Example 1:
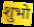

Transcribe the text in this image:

शुभो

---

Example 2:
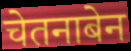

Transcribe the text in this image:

चेतनाबेन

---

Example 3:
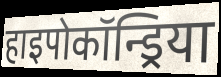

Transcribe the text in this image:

हाइपोकॉन्ड्रिया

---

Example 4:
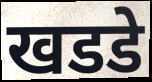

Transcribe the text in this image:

खडडे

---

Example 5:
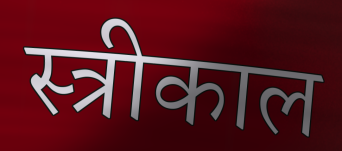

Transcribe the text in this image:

स्त्रीकाल